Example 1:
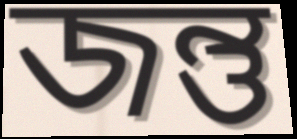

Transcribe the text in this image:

জন্তু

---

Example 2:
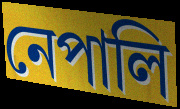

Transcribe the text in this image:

নেপালি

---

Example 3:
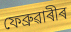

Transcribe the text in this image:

ফেব্ৰুৱাৰীৰ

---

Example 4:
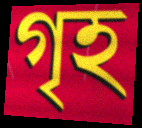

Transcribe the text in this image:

গৃহ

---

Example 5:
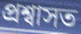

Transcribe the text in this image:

প্ৰশ্বাসত